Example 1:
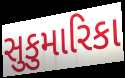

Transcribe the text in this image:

સુકુમારિકા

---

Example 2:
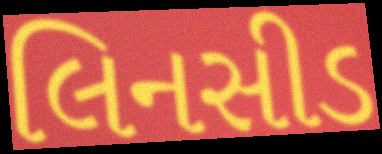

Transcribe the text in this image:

લિનસીડ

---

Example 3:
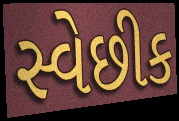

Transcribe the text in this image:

સ્વેછીક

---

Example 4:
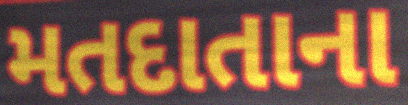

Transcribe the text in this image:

મતદાતાના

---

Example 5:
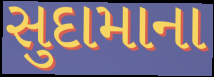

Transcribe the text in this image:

સુદામાના